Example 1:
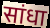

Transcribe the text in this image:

सांधा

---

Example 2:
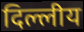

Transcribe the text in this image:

दिल्लीय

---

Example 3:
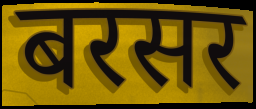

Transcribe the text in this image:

बरसर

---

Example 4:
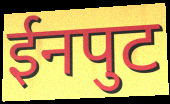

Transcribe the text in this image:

ईनपुट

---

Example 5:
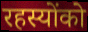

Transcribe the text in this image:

रहस्योंको